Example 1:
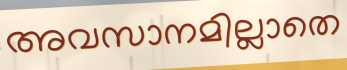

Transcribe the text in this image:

അവസാനമില്ലാതെ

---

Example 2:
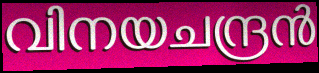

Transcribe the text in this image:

വിനയചന്ദ്രൻ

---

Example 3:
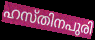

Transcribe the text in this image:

ഹസ്തിനപുരി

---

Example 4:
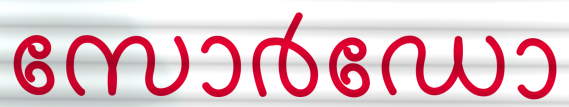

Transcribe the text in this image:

സോർഡോ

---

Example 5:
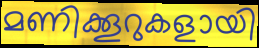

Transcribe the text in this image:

മണിക്കൂറുകളായി